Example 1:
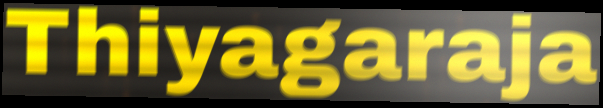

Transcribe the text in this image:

Thiyagaraja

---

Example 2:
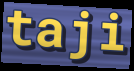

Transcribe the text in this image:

taji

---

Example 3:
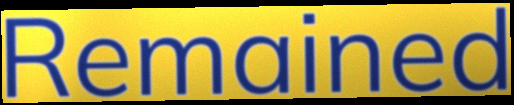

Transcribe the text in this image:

Remained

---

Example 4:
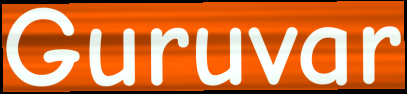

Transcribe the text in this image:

Guruvar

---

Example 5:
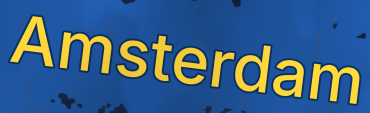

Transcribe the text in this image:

Amsterdam